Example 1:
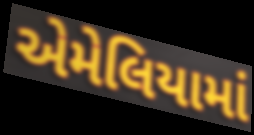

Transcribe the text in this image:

એમેલિયામાં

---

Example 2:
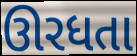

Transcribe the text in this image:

ઊરધતા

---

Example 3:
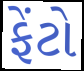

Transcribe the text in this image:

ફેંટો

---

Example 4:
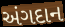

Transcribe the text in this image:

અંગદાન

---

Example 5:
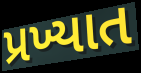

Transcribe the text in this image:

પ્રખ્યાત